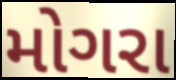
મોગરા